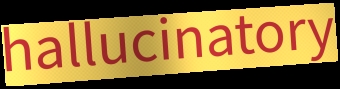
hallucinatory